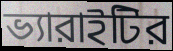
ভ্যারাইটির